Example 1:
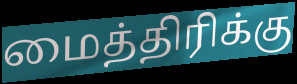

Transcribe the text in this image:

மைத்திரிக்கு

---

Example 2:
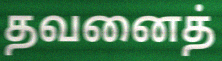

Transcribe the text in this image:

தவனைத்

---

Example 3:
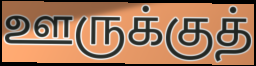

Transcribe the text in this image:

ஊருக்குத்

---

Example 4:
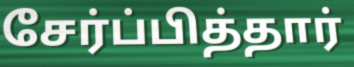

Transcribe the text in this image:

சேர்ப்பித்தார்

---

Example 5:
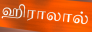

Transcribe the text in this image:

ஹிராலால்